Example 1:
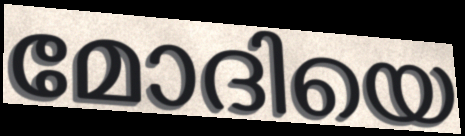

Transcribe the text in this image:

മോദിയെ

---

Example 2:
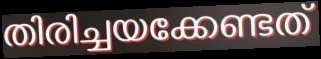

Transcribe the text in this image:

തിരിച്ചയക്കേണ്ടത്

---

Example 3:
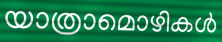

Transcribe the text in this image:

യാത്രാമൊഴികൾ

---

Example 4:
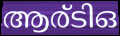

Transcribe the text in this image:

ആര്ടിഒ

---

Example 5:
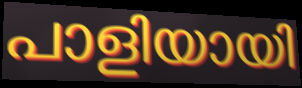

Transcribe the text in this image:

പാളിയായി